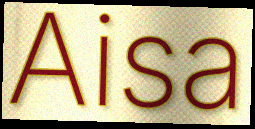
Aisa